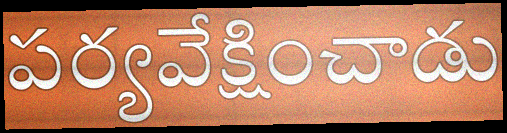
పర్యవేక్షించాడు